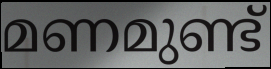
മണമുണ്ട്